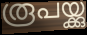
രൂപയ്ക്കു